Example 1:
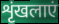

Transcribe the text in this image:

शृंखलाएं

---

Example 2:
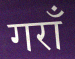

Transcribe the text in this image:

गराँ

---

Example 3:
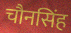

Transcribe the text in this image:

चौनसिंह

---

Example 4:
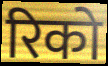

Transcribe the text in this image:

रिको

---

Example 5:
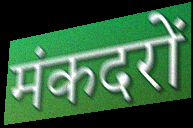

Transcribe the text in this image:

मंकदरों